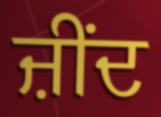
ਜ਼ੀਂਦ